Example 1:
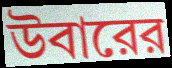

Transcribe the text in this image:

উবারের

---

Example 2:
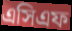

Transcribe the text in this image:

এসিএফ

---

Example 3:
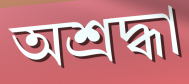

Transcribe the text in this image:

অশ্রদ্ধা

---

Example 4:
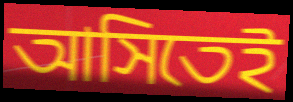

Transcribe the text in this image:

আসিতেই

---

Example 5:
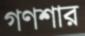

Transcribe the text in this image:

গণশার